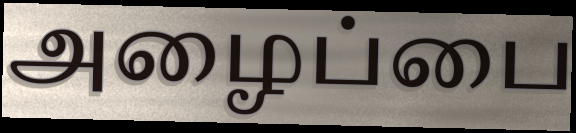
அழைப்பை